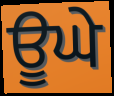
ਊਘੇ